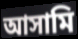
আসামি